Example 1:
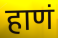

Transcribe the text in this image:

हाणं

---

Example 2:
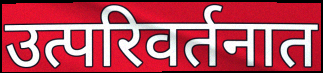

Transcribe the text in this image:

उत्परिवर्तनात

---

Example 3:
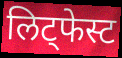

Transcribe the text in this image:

लिट्फेस्ट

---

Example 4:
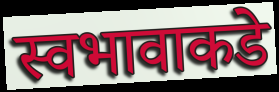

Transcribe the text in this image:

स्वभावाकडे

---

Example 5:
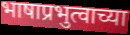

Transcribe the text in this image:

भाषाप्रभुत्वाच्या